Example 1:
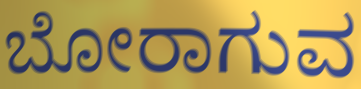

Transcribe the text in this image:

ಬೋರಾಗುವ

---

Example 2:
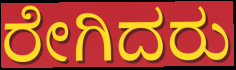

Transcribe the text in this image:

ರೇಗಿದರು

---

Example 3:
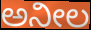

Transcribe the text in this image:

ಅನೀಲ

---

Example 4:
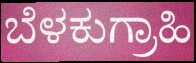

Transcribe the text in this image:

ಬೆಳಕುಗ್ರಾಹಿ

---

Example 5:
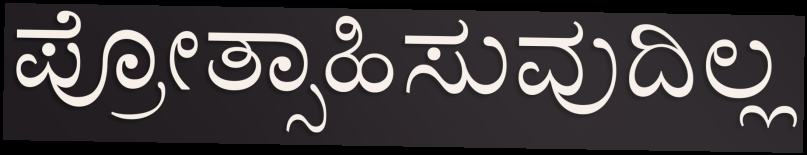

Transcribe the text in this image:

ಪ್ರೋತ್ಸಾಹಿಸುವುದಿಲ್ಲ